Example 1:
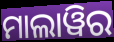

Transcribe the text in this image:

ମାଲାୱିର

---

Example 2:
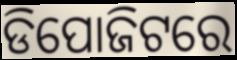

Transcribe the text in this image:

ଡିପୋଜିଟରେ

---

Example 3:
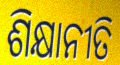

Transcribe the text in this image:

ଶିକ୍ଷାନୀତି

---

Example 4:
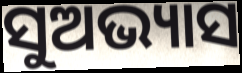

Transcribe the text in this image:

ସୁଅଭ୍ୟାସ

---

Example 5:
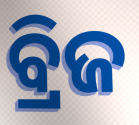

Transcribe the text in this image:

ବ୍ରିଜ